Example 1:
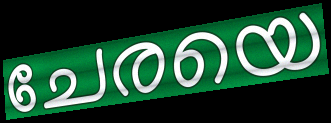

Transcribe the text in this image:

ചേരയെ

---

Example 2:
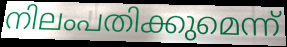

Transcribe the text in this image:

നിലംപതിക്കുമെന്ന്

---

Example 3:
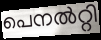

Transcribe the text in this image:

പെനൽറ്റി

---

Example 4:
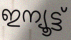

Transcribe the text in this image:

ഇന്യൂട്ട്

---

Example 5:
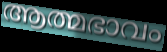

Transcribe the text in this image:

ആത്മഭാവം